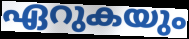
ഏറുകയും